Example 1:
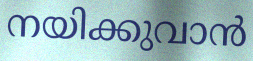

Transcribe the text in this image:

നയിക്കുവാൻ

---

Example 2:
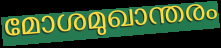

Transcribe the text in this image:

മോശമുഖാന്തരം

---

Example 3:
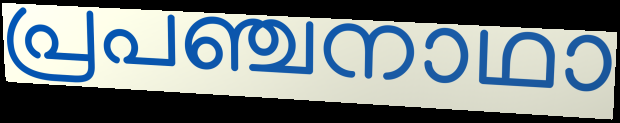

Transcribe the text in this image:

പ്രപഞ്ചനാഥാ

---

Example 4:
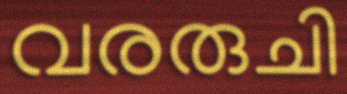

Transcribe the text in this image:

വരരുചി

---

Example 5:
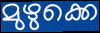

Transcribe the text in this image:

മുഴുക്കെ